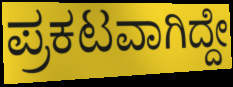
ಪ್ರಕಟವಾಗಿದ್ದೇ